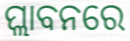
ପ୍ଲାବନରେ